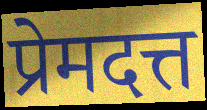
प्रेमदत्त